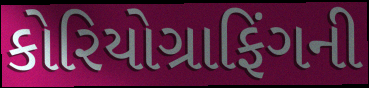
કોરિયોગ્રાફિંગની